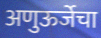
अणुऊर्जेचा